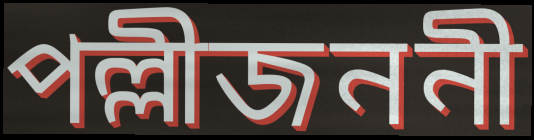
পল্লীজননী